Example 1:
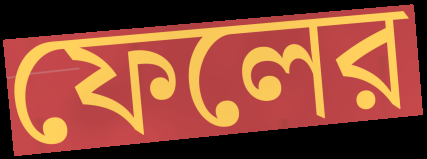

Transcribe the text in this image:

ফেলের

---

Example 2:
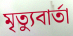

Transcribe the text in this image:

মৃত্যুবার্তা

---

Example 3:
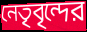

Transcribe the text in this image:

নেতৃবৃন্দের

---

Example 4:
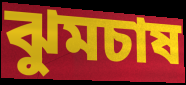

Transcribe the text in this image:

ঝুমচাষ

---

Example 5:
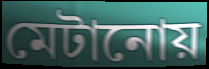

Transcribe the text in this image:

মেটানোয়